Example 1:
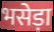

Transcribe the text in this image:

भसेड़ा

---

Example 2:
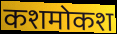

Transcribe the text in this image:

कशमोकश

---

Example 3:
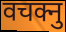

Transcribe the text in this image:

वचक्नु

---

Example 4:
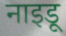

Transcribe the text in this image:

नाइडू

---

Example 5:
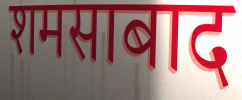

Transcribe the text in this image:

शमसाबाद